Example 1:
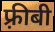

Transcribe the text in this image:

फ़्रीबी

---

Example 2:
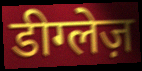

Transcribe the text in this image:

डीग्लेज़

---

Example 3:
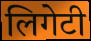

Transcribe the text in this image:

लिगेटी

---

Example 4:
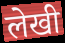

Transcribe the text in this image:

लेखी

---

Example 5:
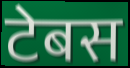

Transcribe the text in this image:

टेबस